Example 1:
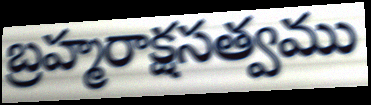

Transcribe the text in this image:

బ్రహ్మరాక్షసత్వము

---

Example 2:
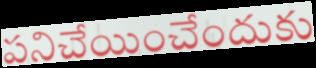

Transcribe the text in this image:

పనిచేయించేందుకు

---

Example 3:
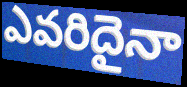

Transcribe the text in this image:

ఎవరిదైనా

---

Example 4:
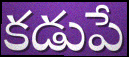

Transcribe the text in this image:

కడుపే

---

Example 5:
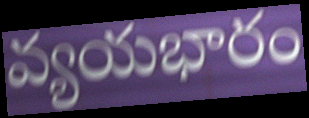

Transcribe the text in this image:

వ్యయభారం